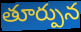
తూర్పున